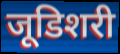
जूडिशरी